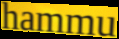
hammu